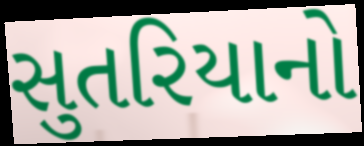
સુતરિયાનો